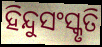
ହିନ୍ଦୁସଂସ୍କୃତି